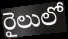
రైలులో